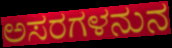
ಅಸರಗಳನುನ